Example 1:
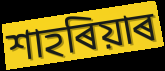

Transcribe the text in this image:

শাহৰিয়াৰ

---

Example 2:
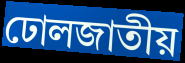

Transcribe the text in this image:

ঢোলজাতীয়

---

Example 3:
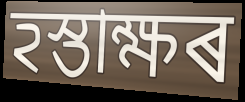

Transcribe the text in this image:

হস্তাক্ষৰ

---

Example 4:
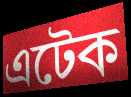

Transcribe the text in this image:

এটেক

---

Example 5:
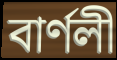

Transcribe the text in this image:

বাৰ্ণলী